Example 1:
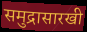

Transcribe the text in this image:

समुद्रासारखी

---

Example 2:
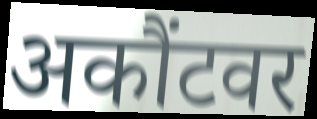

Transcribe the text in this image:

अकौंटवर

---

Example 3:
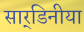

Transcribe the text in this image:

सार्डिनीया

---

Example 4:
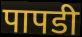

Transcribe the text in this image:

पापडी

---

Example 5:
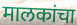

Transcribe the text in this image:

मालकांचा